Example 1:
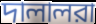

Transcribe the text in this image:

দালালরা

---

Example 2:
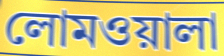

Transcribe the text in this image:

লোমওয়ালা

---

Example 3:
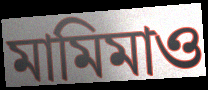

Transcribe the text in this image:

মামিমাও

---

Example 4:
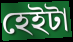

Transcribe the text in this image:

হেইটা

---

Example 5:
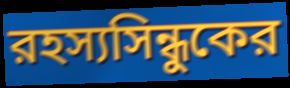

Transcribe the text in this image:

রহস্যসিন্ধুকের